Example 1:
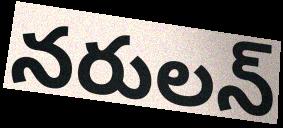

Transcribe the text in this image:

నరులన్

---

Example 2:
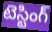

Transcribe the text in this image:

టెస్టింగ్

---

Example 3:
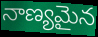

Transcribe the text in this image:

నాణ్యమైన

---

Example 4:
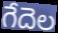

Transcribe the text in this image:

గేదెల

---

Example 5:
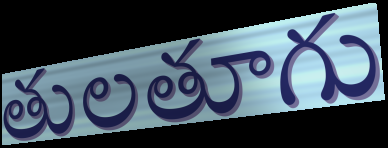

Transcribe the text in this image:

తులతూగు